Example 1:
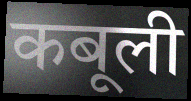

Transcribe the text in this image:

कबूली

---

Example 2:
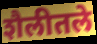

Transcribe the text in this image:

शैलीतले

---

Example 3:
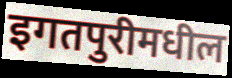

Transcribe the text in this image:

इगतपुरीमधील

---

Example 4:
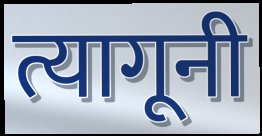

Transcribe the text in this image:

त्यागूनी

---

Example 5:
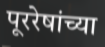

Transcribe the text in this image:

पूररेषांच्या